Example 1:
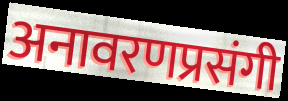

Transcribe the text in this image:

अनावरणप्रसंगी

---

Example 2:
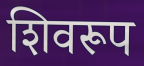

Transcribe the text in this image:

शिवरूप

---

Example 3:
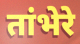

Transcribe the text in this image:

तांभेरे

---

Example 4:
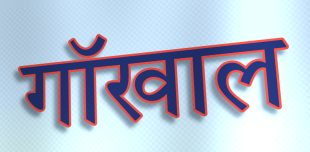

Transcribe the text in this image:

गॉखाल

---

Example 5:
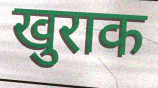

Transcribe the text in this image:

खुराक